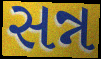
સન્ન